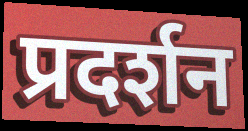
प्रदर्शन